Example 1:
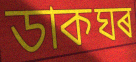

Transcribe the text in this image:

ডাকঘৰ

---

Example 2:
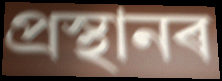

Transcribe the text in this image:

প্ৰস্থানৰ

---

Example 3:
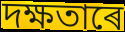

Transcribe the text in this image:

দক্ষতাৰে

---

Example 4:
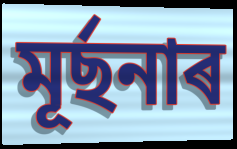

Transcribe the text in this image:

মূৰ্ছনাৰ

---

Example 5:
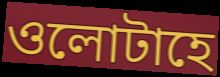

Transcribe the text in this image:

ওলোটাহে